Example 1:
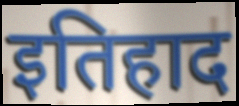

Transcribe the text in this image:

इतिहाद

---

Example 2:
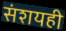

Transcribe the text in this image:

संशयही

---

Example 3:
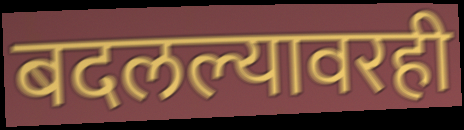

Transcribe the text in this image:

बदलल्यावरही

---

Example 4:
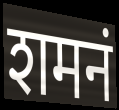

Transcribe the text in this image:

शमनं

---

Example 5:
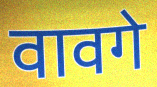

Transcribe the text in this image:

वावगे